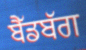
ਬੈੱਡਬੱਗ